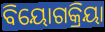
ବିୟୋଗକ୍ରିୟା